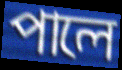
পালে